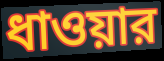
ধাওয়ার